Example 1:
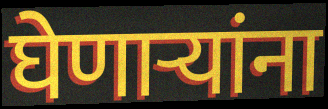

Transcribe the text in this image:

घेणाऱ्यांना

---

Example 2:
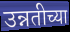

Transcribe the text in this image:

उन्नतीच्या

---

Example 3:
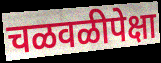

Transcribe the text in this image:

चळवळीपेक्षा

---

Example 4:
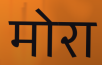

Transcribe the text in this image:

मोरा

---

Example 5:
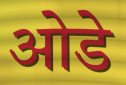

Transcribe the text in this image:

ओडे